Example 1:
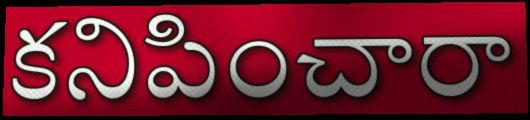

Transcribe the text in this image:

కనిపించారా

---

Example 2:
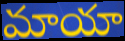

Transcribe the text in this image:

మాయా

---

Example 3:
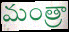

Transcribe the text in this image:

మంత్రా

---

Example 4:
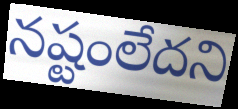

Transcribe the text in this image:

నష్టంలేదని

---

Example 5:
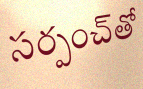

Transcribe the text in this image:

సర్పంచ్‌తో